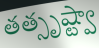
తత్సృష్ట్వా